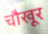
चौखूर